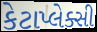
કેટાપ્લેક્સી